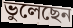
ভুলেছেন